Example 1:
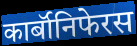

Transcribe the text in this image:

कार्बॉनिफेरस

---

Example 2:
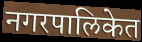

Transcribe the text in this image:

नगरपालिकेत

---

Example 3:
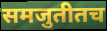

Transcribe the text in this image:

समजुतीतच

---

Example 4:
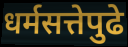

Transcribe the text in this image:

धर्मसत्तेपुढे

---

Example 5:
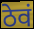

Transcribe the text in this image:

ठेवं